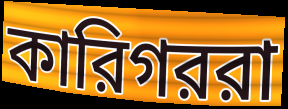
কারিগররা